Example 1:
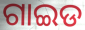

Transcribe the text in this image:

ଗାଇଡ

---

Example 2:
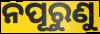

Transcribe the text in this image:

ନପୂରୁଣୁ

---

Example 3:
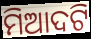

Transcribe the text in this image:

ମିଆଦଟି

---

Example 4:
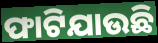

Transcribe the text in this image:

ଫାଟିଯାଉଛି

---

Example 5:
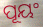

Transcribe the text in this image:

ପୂୟଂ